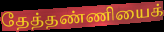
தேத்தண்ணியைக்